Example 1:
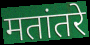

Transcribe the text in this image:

मतांतरे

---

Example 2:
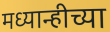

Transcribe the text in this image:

मध्यान्हीच्या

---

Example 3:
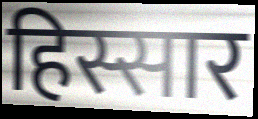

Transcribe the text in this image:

हिस्सार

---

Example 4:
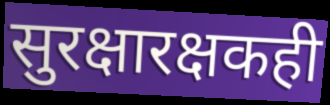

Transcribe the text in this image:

सुरक्षारक्षकही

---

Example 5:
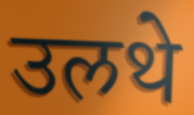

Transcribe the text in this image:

उलथे